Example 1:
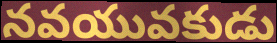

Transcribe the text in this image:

నవయువకుడు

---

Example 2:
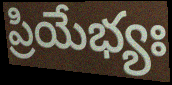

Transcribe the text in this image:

ప్రియేభ్యః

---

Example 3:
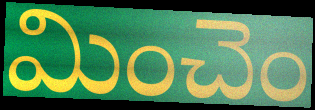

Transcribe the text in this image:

మించెం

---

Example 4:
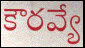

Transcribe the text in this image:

కౌరవ్యే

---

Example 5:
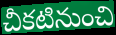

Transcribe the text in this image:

చీకటినుంచి